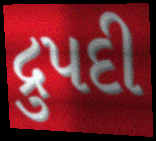
દ્રુપદી